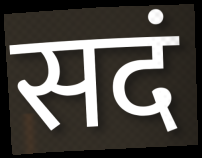
सदं